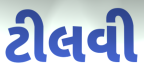
ટીલવી